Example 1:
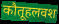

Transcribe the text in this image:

कौतूहलवश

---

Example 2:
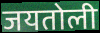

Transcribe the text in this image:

जयतोली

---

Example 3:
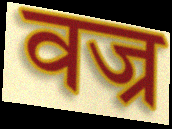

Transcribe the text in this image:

वज्र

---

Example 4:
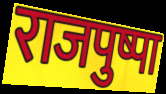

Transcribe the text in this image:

राजपुष्पा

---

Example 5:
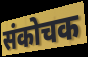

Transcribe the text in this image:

संकोचक